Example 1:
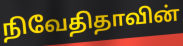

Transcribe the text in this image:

நிவேதிதாவின்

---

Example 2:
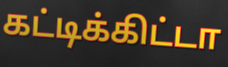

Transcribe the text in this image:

கட்டிக்கிட்டா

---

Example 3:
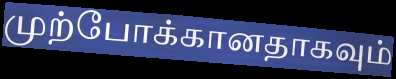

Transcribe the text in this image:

முற்போக்கானதாகவும்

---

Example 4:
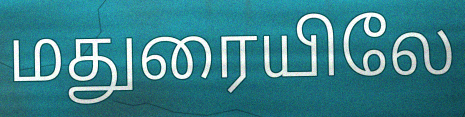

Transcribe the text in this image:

மதுரையிலே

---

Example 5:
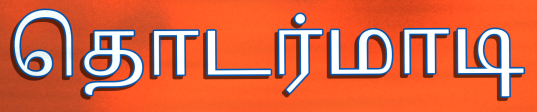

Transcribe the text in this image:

தொடர்மாடி